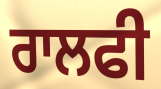
ਰਾਲਫੀ